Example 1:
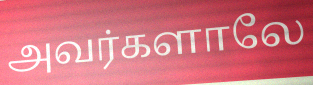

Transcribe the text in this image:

அவர்களாலே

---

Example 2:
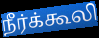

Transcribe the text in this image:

நீர்க்கூலி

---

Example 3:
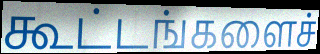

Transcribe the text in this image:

கூட்டங்களைச்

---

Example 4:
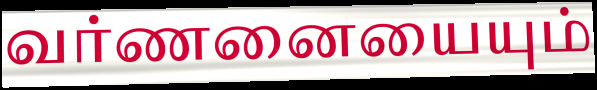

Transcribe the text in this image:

வர்ணனையையும்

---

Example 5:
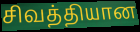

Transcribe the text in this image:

சிவத்தியான